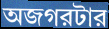
অজগরটার